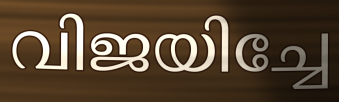
വിജയിച്ചേ